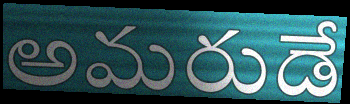
అమరుడే